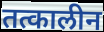
तत्कालीन